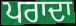
ਪਰਾਦਾ